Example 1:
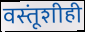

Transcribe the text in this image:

वस्तूंशीही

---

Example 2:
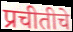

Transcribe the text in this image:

प्रचीतीचे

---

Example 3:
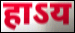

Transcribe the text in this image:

हाऽय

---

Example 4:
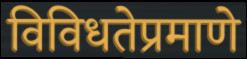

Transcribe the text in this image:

विविधतेप्रमाणे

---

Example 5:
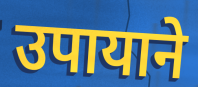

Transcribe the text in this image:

उपायाने